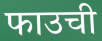
फाउची